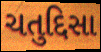
ચતુદ્દિસા